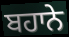
ਬਹਾਨੇ